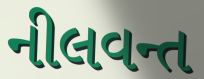
નીલવન્ત